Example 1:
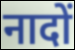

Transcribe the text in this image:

नादों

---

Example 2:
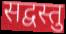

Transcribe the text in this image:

सद्वस्तु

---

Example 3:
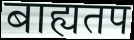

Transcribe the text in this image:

बाह्यतप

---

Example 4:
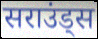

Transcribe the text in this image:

सराउंड्स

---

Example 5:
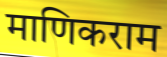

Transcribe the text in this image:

माणिकराम